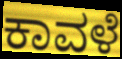
ಕಾವಳೆ